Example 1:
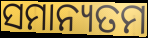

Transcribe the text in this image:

ସମାନ୍ୟତମ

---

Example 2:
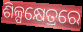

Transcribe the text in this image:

ଶିଳ୍ପକ୍ଷେତ୍ରରେ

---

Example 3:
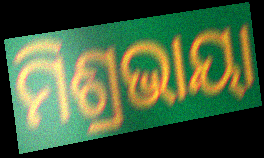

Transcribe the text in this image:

ମିଶ୍ରଭାୟା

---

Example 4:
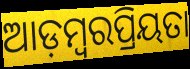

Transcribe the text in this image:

ଆଡ଼ମ୍ବରପ୍ରିୟତା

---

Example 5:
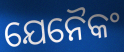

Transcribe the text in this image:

ଯେନୈକଂ